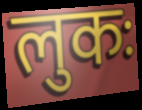
लुकः